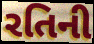
રતિની